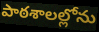
పాఠశాలల్లోను